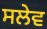
ਸਲੇਵ